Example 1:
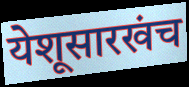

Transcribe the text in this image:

येशूसारखंच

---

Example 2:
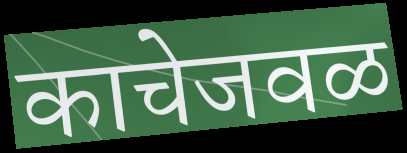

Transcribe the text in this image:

काचेजवळ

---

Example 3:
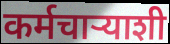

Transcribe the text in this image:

कर्मचाऱ्याशी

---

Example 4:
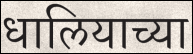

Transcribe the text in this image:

धालियाच्या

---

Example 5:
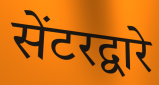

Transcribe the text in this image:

सेंटरद्वारे